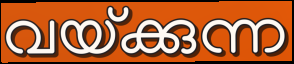
വയ്‌ക്കുന്ന